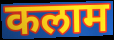
कलाम